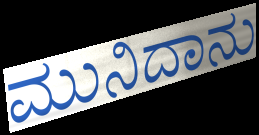
ಮುನಿದಾನು